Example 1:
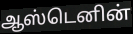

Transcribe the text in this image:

ஆஸ்டெனின்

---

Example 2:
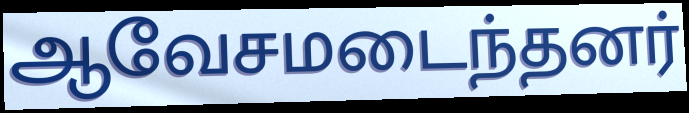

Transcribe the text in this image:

ஆவேசமடைந்தனர்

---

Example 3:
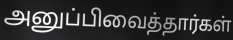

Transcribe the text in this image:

அனுப்பிவைத்தார்கள்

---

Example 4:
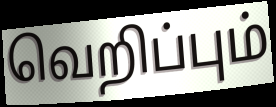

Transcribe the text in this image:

வெறிப்பும்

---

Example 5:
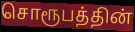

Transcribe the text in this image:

சொரூபத்தின்